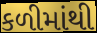
કળીમાંથી